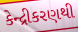
કેન્દ્રીકરણથી